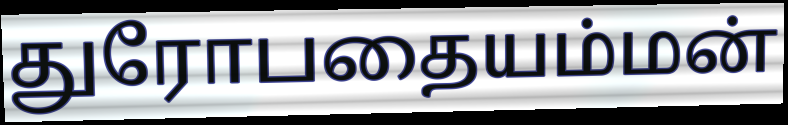
துரோபதையம்மன்